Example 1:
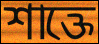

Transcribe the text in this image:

শাক্তে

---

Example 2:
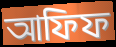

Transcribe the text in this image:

আফিফ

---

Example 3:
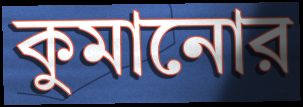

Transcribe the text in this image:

কুমানোর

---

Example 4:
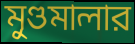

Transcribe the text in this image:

মুণ্ডমালার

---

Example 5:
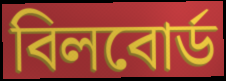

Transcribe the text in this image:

বিলবোর্ড